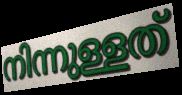
നിന്നുള്ളത്